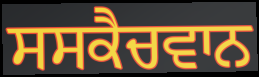
ਸਸਕੈਚਵਾਨ